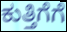
ಕುತ್ತಿಗೆಗೆ